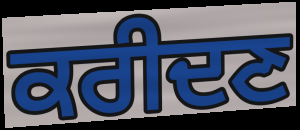
ਕਰੀਦਣ